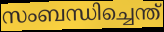
സംബന്ധിച്ചെന്ത്